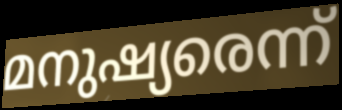
മനുഷ്യരെന്ന്